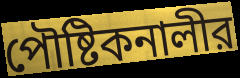
পৌষ্টিকনালীর